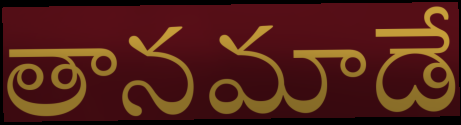
తానమాడే